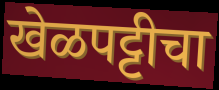
खेळपट्टीचा